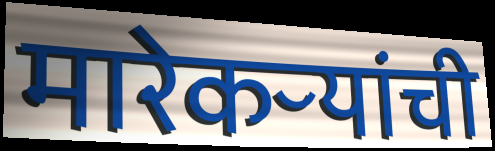
मारेकऱ्यांची